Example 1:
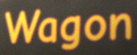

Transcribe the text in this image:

Wagon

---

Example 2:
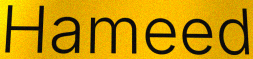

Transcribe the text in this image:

Hameed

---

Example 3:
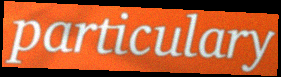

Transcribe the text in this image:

particulary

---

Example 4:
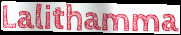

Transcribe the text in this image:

Lalithamma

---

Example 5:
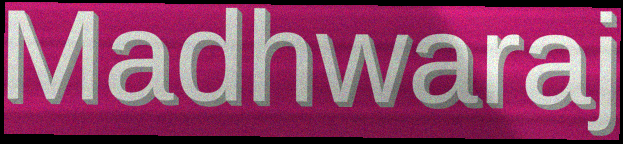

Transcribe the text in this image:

Madhwaraj